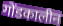
गोंडकालीन